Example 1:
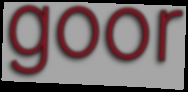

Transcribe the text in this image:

goor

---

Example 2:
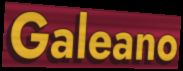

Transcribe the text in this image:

Galeano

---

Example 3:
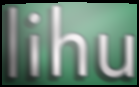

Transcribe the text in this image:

lihu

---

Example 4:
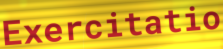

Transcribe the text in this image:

Exercitatio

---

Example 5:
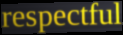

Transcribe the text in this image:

respectful